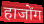
हाजोंग